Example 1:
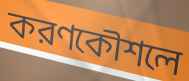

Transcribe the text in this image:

করণকৌশলে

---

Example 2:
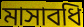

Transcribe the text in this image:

মাসাবধি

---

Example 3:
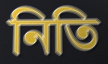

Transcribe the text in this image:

নিতি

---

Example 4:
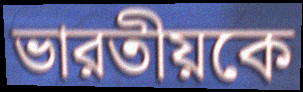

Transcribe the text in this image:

ভারতীয়কে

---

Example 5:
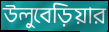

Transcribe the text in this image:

উলুবেড়িয়ার